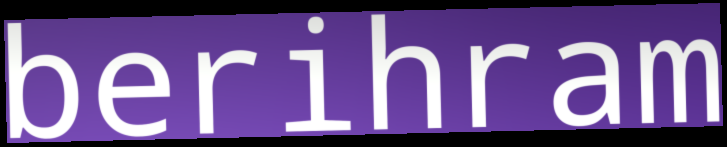
berihram